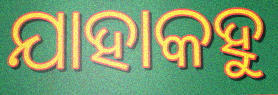
ଯାହାକହୁ